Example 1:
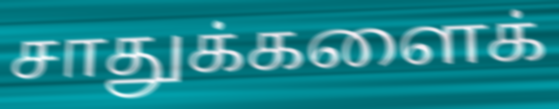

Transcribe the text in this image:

சாதுக்களைக்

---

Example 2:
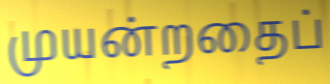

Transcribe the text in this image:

முயன்றதைப்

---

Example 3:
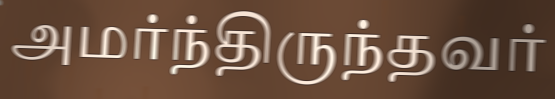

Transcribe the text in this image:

அமர்ந்திருந்தவர்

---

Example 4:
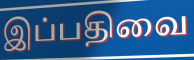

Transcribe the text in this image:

இப்பதிவை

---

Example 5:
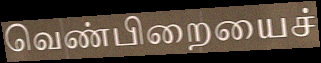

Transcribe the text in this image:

வெண்பிறையைச்